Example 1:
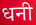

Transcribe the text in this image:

धनी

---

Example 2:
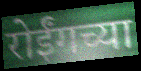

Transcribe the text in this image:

रोईंगच्या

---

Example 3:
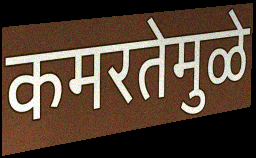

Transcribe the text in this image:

कमरतेमुळे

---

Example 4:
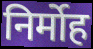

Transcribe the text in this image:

निर्मोह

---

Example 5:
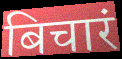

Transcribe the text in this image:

बिचारं